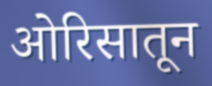
ओरिसातून